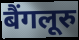
बैंगलूरु